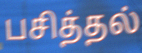
பசித்தல்